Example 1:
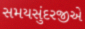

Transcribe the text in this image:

સમયસુંદરજીએ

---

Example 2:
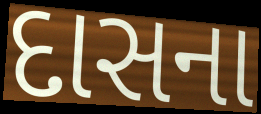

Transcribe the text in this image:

દાસના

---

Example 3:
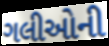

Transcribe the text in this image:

ગલીઓની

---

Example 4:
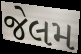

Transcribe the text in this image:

જેલમ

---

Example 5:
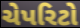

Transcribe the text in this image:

ચેપરિટો